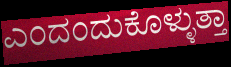
ಎಂದಂದುಕೊಳ್ಳುತ್ತಾ